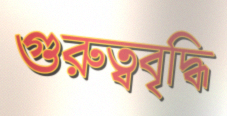
গুরুত্ববৃদ্ধি